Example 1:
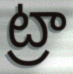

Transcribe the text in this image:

ట్రా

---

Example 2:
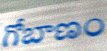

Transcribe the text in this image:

గోబాణం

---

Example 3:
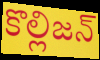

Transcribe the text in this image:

కొల్లిజన్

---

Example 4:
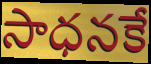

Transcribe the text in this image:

సాధనకే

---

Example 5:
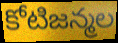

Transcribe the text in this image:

కోటిజన్మల